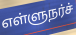
எள்ளுநர்ச்